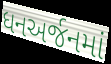
ધનઅર્જનમાં